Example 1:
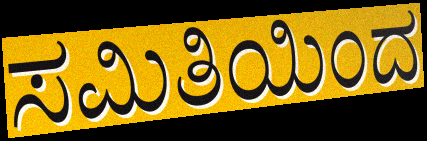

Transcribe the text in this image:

ಸಮಿತಿಯಿಂದ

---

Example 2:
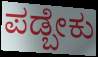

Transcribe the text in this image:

ಪಡ್ಬೇಕು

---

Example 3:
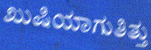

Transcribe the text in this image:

ಖುಷಿಯಾಗುತಿತ್ತು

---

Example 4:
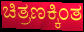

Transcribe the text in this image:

ಚಿತ್ರಣಕ್ಕಿಂತ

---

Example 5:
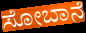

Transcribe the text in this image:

ಸೋಬಾನೆ